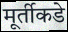
मूर्तीकडे